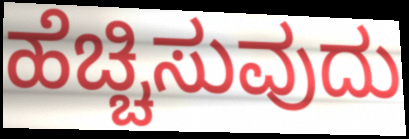
ಹೆಚ್ಚಿಸುವುದು